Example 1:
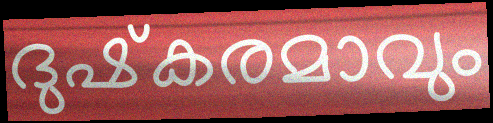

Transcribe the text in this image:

ദുഷ്‌കരമാവും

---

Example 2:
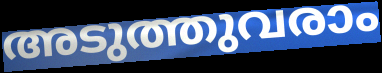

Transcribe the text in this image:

അടുത്തുവരാം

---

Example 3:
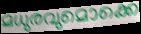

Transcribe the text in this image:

മധുരവുമൊക്കെ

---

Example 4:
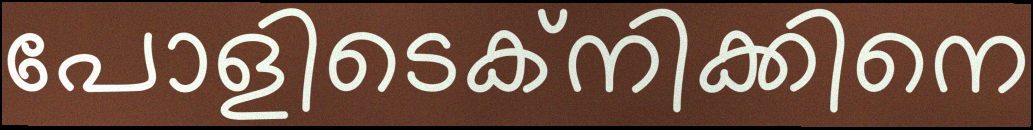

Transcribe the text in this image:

പോളിടെക്നിക്കിനെ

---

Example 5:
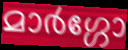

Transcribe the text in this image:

മാർഗ്ഗോ